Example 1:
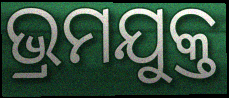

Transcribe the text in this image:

ଭ୍ରମଯୁକ୍ତ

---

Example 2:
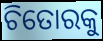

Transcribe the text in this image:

ଚିତୋରକୁ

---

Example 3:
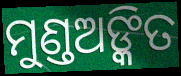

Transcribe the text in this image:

ମୁଣ୍ଡଅଙ୍କିତ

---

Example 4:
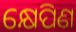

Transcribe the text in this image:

କ୍ଷେପିଣ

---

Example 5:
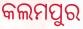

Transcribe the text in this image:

କଲମପୁର